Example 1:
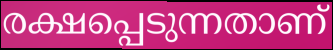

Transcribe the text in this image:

രക്ഷപ്പെടുന്നതാണ്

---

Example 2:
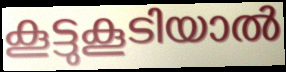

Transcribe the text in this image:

കൂട്ടുകൂടിയാൽ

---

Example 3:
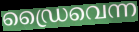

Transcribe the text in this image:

ഡ്രൈവെന്ന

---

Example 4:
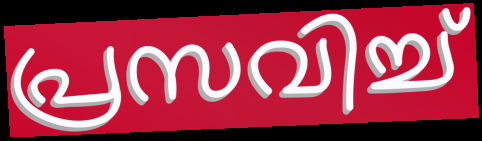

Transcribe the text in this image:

പ്രസവിച്ച്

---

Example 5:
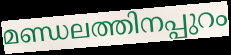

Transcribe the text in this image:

മണ്ഡലത്തിനപ്പുറം